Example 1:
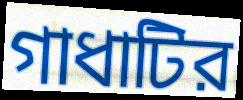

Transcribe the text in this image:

গাধাটির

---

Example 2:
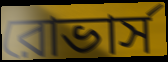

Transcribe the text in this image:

রোভার্স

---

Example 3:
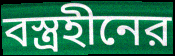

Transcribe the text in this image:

বস্ত্রহীনের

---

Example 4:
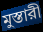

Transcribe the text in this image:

মুস্তারী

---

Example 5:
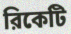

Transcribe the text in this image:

রিকেটি